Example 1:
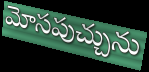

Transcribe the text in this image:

మోసపుచ్చును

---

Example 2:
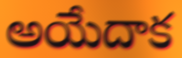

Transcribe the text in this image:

అయేదాక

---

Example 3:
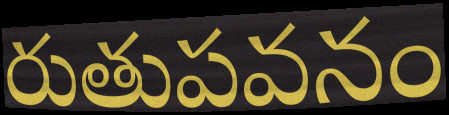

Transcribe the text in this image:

రుతుపవనం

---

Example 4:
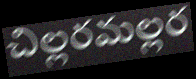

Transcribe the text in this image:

చిల్లరమల్లర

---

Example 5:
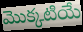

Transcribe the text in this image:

మొక్కటియే